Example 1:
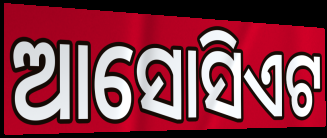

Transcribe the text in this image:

ଆସୋସିଏଟ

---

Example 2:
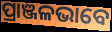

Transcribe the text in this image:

ପ୍ରାଞ୍ଜଳଭାବେ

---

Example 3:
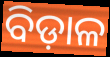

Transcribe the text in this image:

ବିଡ଼ାଳ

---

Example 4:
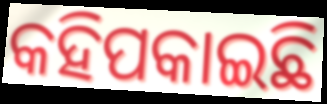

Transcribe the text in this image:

କହିପକାଇଛି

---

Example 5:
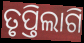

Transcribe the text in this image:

ତୃପ୍ତିଲାଗି